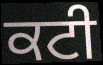
ਕਟੀ